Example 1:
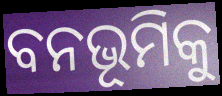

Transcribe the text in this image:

ବନଭୂମିକୁ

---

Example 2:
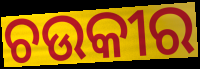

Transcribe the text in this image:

ଚଉକୀର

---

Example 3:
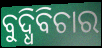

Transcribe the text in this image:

ବୁଦ୍ଧିବିଚାର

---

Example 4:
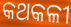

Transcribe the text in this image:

କଥକଳୀ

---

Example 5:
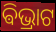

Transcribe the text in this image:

ଵିଭ୍ରାଟ